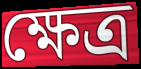
ক্ষেত্র